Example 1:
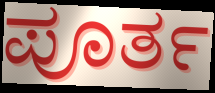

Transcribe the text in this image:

ಪೂರ್ತ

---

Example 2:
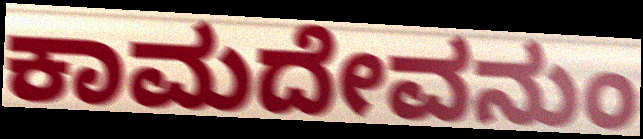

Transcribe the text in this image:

ಕಾಮದೇವನುಂ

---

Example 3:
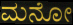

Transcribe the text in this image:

ಮನೋ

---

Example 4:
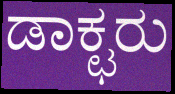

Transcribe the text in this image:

ಡಾಕ್ಟರು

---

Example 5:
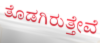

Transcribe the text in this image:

ತೊಡಗಿರುತ್ತೇವೆ